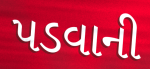
પડવાની